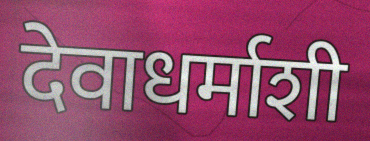
देवाधर्माशी